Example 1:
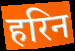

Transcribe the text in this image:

हरिन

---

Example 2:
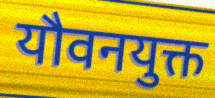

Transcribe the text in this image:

यौवनयुक्त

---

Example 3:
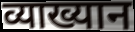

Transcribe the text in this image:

व्याख्यान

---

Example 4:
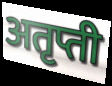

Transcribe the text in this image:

अतृप्ती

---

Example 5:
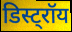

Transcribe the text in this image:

डिस्ट्रॉय